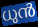
ധുൻ